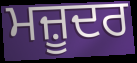
ਮਜ਼ੂਦਰ